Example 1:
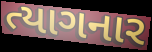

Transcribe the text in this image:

ત્યાગનાર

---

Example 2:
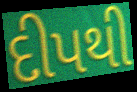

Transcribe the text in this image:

દીપથી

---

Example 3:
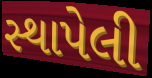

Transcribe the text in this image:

સ્‍થાપેલી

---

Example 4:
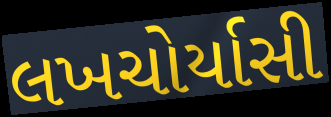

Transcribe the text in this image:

લખચોર્યાસી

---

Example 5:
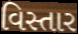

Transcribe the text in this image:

વિસ્તાર